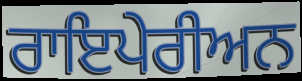
ਰਾਇਪੇਰੀਅਨ